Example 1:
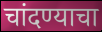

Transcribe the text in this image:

चांदण्याचा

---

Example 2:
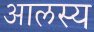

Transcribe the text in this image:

आलस्य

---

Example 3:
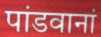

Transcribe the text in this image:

पांडवानां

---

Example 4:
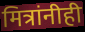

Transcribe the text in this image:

मित्रांनीही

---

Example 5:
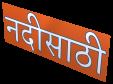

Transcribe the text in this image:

नदीसाठी